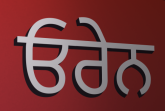
ਓਰੇਨ